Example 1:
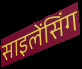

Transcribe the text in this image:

साइलेंसिंग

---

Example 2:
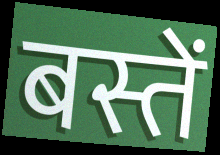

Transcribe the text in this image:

बस्तें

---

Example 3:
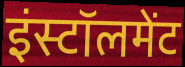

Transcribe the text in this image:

इंस्टॉलमेंट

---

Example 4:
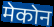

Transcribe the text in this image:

मेकोन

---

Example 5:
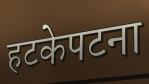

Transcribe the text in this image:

हटकेपटना